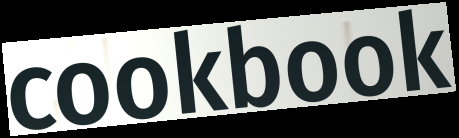
cookbook